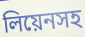
লিয়েনসহ